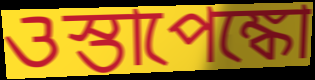
ওস্তাপেঙ্কো